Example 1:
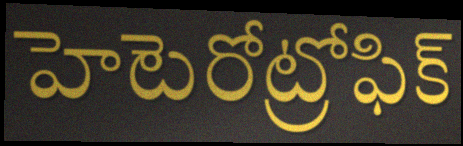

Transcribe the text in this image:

హెటెరోట్రోఫిక్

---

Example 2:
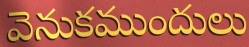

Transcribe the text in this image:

వెనుకముందులు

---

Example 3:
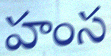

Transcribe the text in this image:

హంస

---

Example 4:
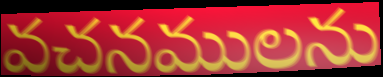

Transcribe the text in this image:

వచనములను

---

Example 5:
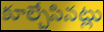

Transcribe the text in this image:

కూల్చేసినట్లు